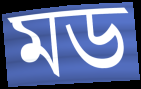
মড